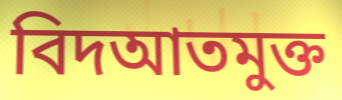
বিদআতমুক্ত